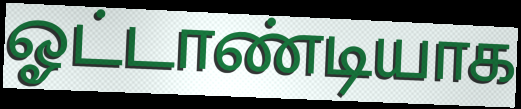
ஓட்டாண்டியாக